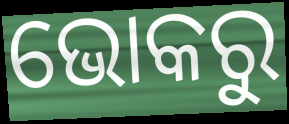
ଭୋକରୁ